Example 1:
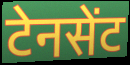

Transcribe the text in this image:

टेनसेंट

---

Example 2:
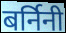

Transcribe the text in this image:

बर्निनी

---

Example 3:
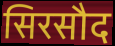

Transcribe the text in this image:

सिरसौद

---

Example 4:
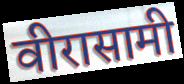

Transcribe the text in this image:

वीरासामी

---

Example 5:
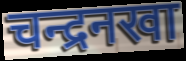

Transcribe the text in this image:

चन्द्रनखा